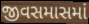
જીવસમાસમાં